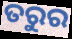
ତରୁର